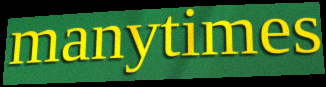
manytimes